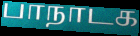
பாநாடக